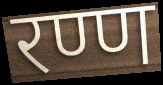
रण्ण